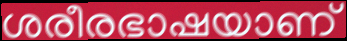
ശരീരഭാഷയാണ്